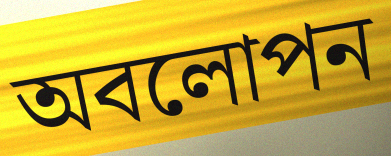
অবলোপন